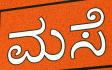
ಮಸೆ